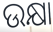
ଉକ୍ଷା